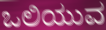
ಒಲಿಯುವ